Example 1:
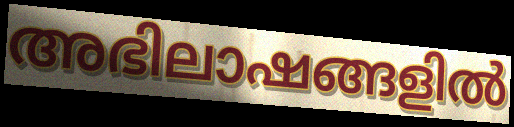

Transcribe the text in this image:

അഭിലാഷങ്ങളിൽ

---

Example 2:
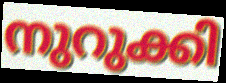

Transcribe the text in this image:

നുറുക്കി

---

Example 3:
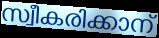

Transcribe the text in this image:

സ്വീകരിക്കാന്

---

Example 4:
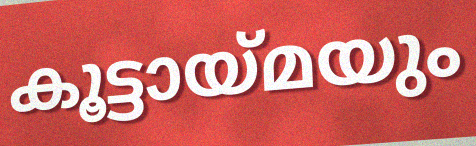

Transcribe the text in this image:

കൂട്ടായ്മയും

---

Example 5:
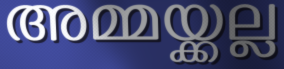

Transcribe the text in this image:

അമ്മയ്ക്കല്ല